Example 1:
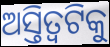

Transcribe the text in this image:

ଅସ୍ତିତ୍ୱଟିକୁ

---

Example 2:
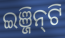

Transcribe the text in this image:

ଇଞ୍ଜିନ୍‌ଟି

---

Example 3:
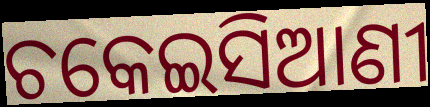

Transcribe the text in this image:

ଚକେଇସିଆଣୀ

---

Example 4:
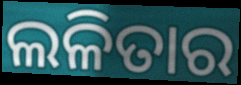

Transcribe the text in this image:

ଲଳିତାର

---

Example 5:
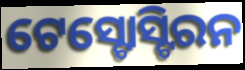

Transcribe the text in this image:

ଟେସ୍ଟୋସ୍ଟିରନ